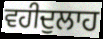
ਵਹੀਦੁਲਾਹ